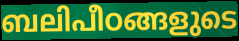
ബലിപീഠങ്ങളുടെ